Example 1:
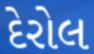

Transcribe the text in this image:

દેરોલ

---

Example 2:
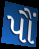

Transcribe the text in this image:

પૌં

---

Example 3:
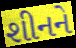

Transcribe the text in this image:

શીનને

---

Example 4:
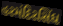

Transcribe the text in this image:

હરમંદિરસિંઘ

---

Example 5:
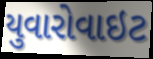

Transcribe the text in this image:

યુવારોવાઇટ